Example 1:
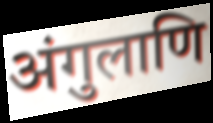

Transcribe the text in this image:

अंगुलाणि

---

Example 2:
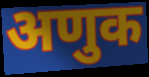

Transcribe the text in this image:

अणुक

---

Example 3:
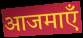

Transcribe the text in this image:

आजमाएँ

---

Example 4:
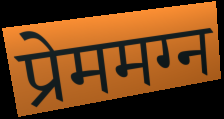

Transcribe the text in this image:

प्रेममग्न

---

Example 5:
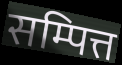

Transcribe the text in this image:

सम्पित्त